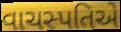
વાચસ્પતિએ